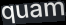
quam